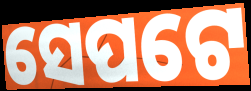
ସେପଟେ